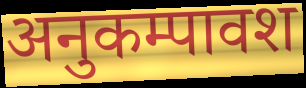
अनुकम्पावश